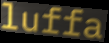
luffa